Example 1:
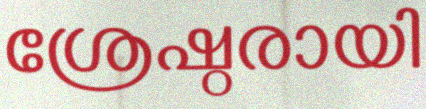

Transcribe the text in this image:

ശ്രേഷ്ഠരായി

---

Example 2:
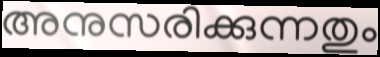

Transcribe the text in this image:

അനുസരിക്കുന്നതും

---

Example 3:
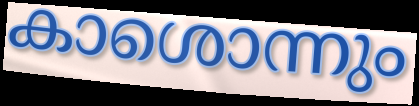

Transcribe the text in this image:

കാശൊന്നും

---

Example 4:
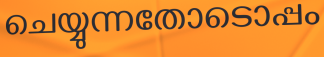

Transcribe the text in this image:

ചെയ്യുന്നതോടൊപ്പം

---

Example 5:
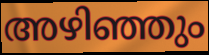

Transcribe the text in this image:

അഴിഞ്ഞും